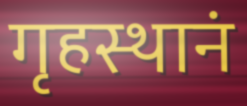
गृहस्थानं